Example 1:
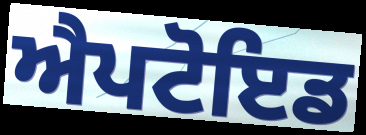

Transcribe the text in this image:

ਐਪਟੋਇਡ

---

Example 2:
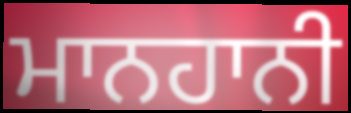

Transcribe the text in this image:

ਮਾਨਹਾਨੀ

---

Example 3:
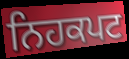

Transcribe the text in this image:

ਨਿਹਕਪਟ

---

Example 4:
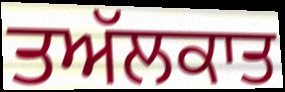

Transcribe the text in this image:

ਤਅੱਲਕਾਤ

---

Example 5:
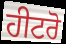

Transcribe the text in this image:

ਹੀਟਰੋ